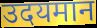
उदयमान